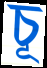
চূ